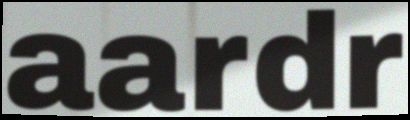
aardr